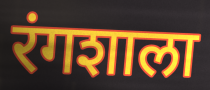
रंगशाला